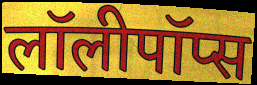
लॉलीपॉप्स